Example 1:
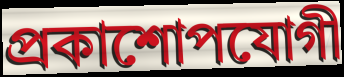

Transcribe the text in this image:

প্রকাশোপযোগী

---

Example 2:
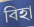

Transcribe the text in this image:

বিহা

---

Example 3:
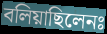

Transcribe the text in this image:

বলিয়াছিলেনঃ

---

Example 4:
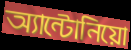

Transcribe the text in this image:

অ্যান্টোনিয়ো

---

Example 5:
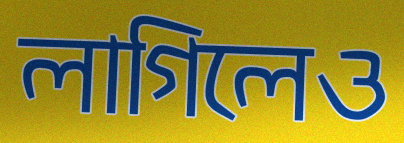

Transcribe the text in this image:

লাগিলেও